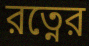
রত্নের